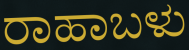
ರಾಹಾಬಳು